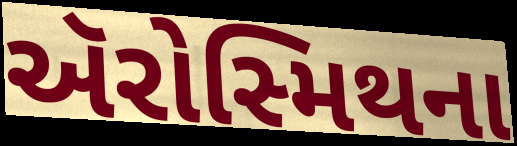
ઍરોસ્મિથના